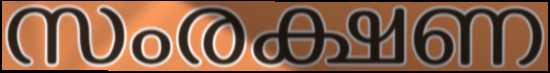
സംരക്ഷണ